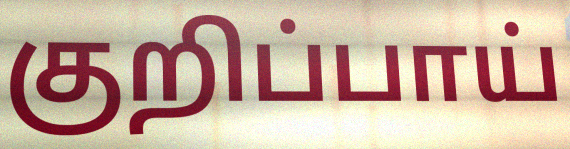
குறிப்பாய்